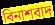
বিনাশবাদ